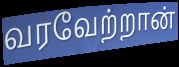
வரவேற்றான்